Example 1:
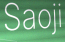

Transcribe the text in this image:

Saoji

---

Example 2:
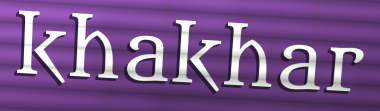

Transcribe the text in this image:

khakhar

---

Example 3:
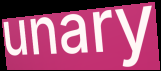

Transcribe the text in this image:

unary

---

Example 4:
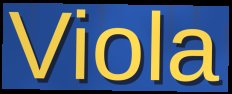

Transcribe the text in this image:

Viola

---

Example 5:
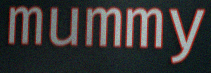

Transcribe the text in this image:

mummy